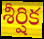
శీర్షిక